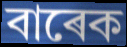
বাৰেক